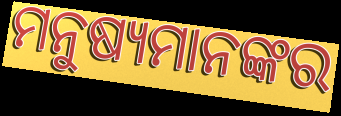
ମନୁଷ୍ୟମାନଙ୍କର